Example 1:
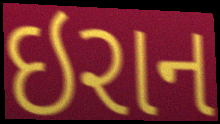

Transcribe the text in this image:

ઇરાન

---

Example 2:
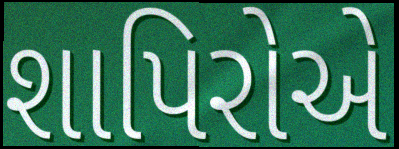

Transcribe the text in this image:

શાપિરોએ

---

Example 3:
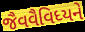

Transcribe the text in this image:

જૈવવૈવિધ્યને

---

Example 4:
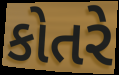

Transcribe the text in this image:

કોતરે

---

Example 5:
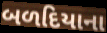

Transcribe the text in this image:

બળદિયાના